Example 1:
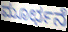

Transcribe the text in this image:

ಮೂರ್ಛನೆ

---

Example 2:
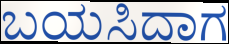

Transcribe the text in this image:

ಬಯಸಿದಾಗ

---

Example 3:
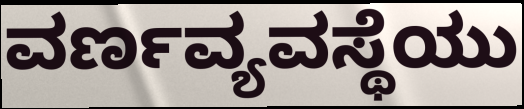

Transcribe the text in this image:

ವರ್ಣವ್ಯವಸ್ಥೆಯು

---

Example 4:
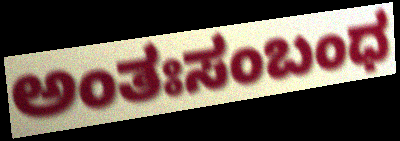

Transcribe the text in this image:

ಅಂತಃಸಂಬಂಧ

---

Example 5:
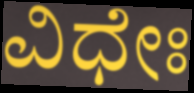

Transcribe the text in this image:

ವಿಧೇಃ